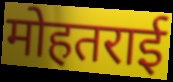
मोहतराई